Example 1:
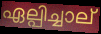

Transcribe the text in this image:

ഏല്പിച്ചാല്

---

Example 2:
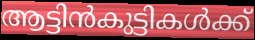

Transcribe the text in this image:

ആട്ടിൻകുട്ടികൾക്ക്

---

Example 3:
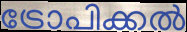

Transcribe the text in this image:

ട്രോപിക്കൽ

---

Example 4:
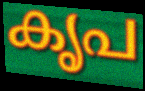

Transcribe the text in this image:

കൃപ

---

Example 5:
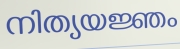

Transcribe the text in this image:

നിത്യയജ്ഞം